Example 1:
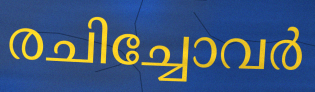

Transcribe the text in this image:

രചിച്ചോവർ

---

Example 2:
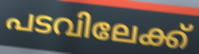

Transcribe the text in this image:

പടവിലേക്ക്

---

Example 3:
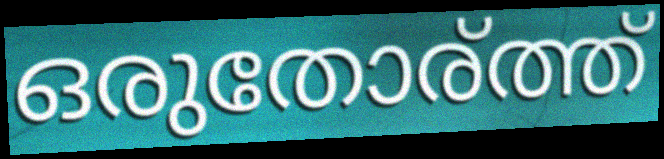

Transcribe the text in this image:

ഒരുതോര്ത്ത്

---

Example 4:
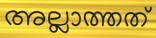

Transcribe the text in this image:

അല്ലാത്തത്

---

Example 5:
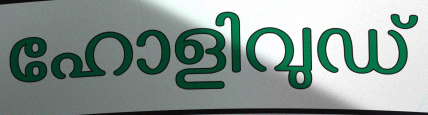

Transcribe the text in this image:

ഹോളിവുഡ്